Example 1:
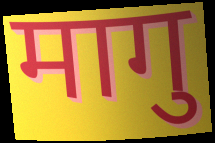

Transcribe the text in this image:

मागु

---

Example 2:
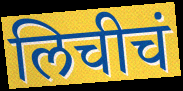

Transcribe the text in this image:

लिचीचं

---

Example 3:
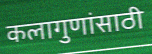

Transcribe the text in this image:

कलागुणांसाठी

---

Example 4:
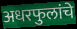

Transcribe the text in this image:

अधरफुलांचे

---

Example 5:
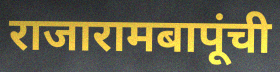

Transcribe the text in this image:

राजारामबापूंची